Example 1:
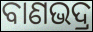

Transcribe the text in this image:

ବାଣଭଦ୍ର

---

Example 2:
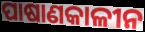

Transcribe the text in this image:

ପାଷାଣକାଳୀନ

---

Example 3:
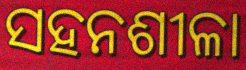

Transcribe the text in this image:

ସହନଶୀଳା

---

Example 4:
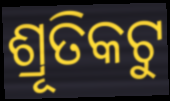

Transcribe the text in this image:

ଶ୍ରୂତିକଟୁ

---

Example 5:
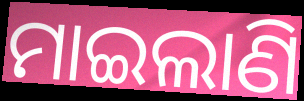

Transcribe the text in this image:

ମାଇଲାଣି